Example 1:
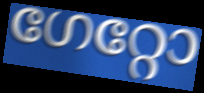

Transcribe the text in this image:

ഗേറ്റോ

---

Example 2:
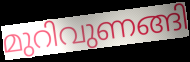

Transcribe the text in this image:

മുറിവുണങ്ങി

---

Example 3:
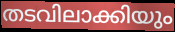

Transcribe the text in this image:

തടവിലാക്കിയും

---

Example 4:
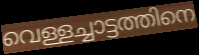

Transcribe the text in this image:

വെള്ളച്ചാട്ടത്തിനെ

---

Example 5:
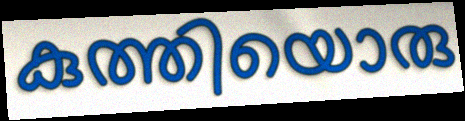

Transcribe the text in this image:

കുത്തിയൊരു